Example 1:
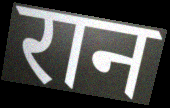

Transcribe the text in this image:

रान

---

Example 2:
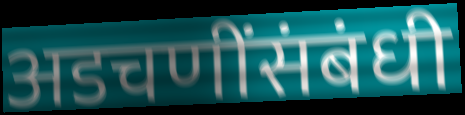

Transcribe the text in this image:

अडचणींसंबंधी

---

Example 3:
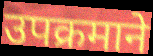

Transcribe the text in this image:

उपक्रमाने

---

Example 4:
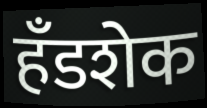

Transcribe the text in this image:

हँडशेक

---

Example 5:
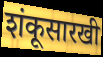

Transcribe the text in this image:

शंकूसारखी